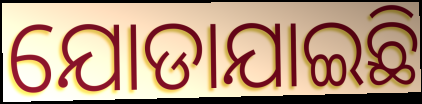
ଯୋଡାଯାଇଛି